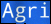
Agri